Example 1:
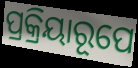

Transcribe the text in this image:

ପ୍ରକ୍ରିୟାରୂପେ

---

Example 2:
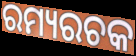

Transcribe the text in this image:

ରମ୍ୟରଚକ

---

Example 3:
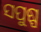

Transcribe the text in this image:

ସପୁଷ୍ପ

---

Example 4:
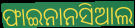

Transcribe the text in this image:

ଫାଇନାନସିଆଲ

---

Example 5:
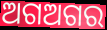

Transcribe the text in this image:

ଅଗଅଗର